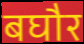
बघौर